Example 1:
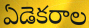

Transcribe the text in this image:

ఏడెకరాల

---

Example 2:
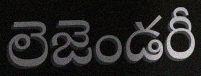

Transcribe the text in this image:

లెజెండరీ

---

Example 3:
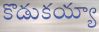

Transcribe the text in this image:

కొడుకయ్యా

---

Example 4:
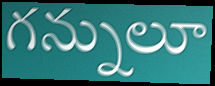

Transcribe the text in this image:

గన్నులూ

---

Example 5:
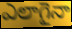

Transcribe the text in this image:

ఎలాగైనా